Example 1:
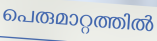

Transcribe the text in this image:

പെരുമാറ്റത്തിൽ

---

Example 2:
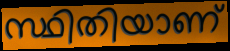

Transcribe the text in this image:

സ്ഥിതിയാണ്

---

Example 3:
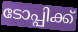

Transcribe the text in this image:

ടോപ്പിക്ക്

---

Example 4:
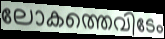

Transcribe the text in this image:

ലോകത്തെവിടേം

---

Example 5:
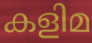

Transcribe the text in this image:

കളിമ